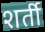
शर्ती